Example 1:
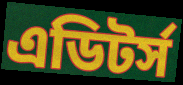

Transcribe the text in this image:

এডিটর্স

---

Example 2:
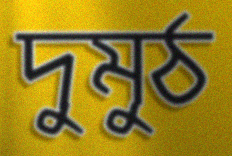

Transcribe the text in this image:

দুমুঠ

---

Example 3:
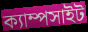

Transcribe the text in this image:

ক্যাম্পসাইট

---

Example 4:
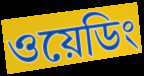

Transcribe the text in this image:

ওয়েডিং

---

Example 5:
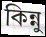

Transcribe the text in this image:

কিন্নু